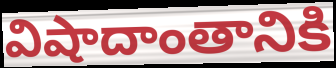
విషాదాంతానికి